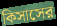
কিসাসের